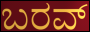
ಬರವ್